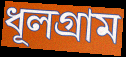
ধূলগ্রাম